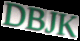
DBJK